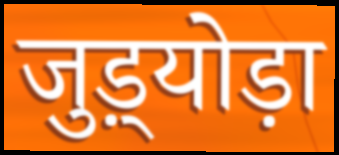
जुड़्योड़ा